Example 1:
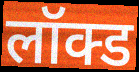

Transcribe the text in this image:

लॉक्ड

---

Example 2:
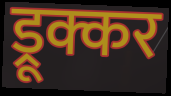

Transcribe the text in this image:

ड्रूक्कर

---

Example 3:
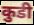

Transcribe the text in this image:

कुडी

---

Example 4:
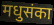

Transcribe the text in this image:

मधुसंका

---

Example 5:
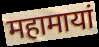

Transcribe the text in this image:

महामायां